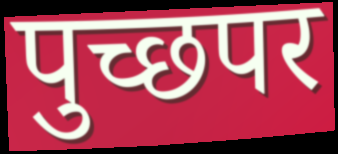
पुच्छपर